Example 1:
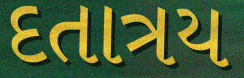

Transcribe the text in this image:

દતાત્રય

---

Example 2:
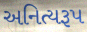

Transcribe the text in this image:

અનિત્યરૂપ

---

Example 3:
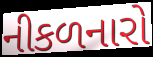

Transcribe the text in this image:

નીકળનારો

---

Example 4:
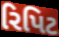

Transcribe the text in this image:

રિપિટ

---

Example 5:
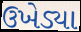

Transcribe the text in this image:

ઉખેડ્યા